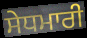
ਸੇਧਮਾਰੀ